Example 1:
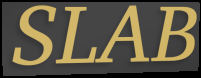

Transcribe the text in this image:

SLAB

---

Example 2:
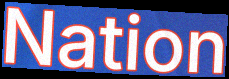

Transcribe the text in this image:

Nation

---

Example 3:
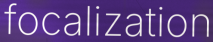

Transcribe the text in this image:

focalization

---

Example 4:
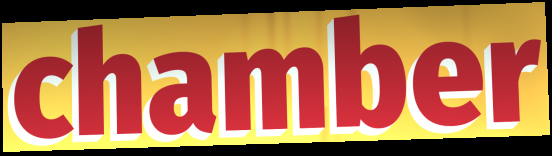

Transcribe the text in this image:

chamber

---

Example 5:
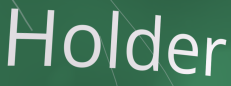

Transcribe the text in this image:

Holder